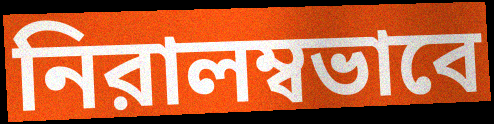
নিরালম্বভাবে